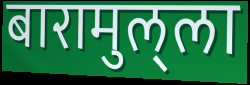
बारामुल्ला